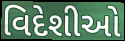
વિદેશીઓ